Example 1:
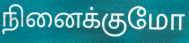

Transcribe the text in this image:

நினைக்குமோ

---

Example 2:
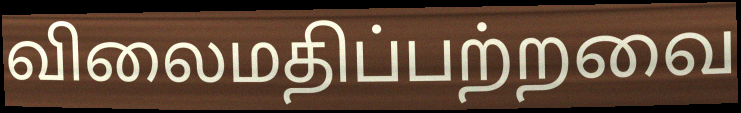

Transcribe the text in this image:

விலைமதிப்பற்றவை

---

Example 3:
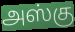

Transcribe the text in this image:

அஸ்கு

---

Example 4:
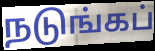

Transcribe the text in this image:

நடுங்கப்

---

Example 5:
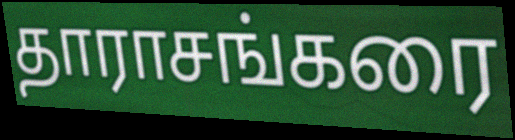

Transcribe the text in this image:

தாராசங்கரை